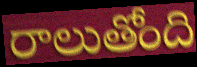
రాలుతోంది